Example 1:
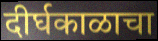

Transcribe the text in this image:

दीर्घकाळाचा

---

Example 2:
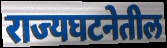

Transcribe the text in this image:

राज्यघटनेतील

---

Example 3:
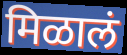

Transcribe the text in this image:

मिळालं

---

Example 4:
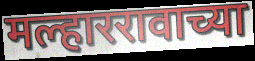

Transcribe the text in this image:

मल्हाररावाच्या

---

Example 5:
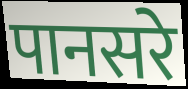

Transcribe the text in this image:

पानसरे